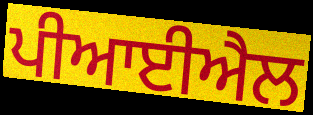
ਪੀਆਈਐਲ